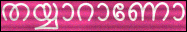
തയ്യാറാണോ